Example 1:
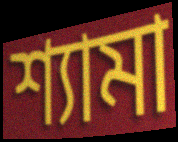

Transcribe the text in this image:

শ্যামা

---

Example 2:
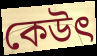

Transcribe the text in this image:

কেউৎ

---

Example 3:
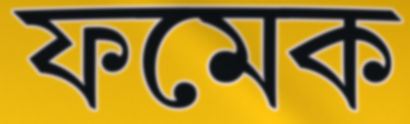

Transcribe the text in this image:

ফমেক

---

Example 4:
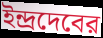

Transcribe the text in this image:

ইন্দ্রদেবের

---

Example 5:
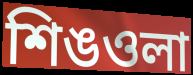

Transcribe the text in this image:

শিঙওলা